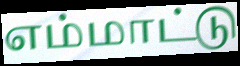
எம்மாட்டு